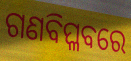
ଗଣବିପ୍ଳବରେ